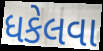
ધકેલવા